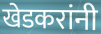
खेडकरांनी